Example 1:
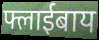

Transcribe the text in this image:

फ्लाईबाय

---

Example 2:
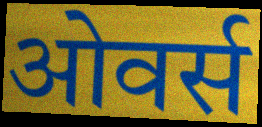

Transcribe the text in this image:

ओवर्स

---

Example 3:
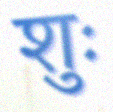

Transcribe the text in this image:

शुः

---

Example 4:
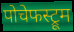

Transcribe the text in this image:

पोचेफस्ट्रूम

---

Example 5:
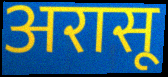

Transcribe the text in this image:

अरासू